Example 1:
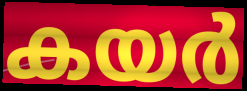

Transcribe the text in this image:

കയർ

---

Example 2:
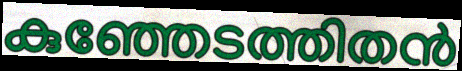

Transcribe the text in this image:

കുഞ്ഞേടത്തിതൻ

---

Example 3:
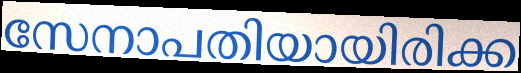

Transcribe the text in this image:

സേനാപതിയായിരിക്ക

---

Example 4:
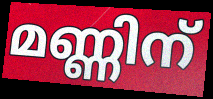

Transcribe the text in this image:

മണ്ണിന്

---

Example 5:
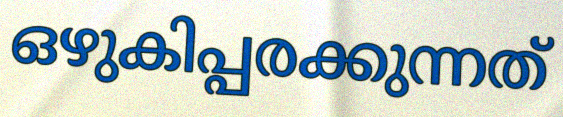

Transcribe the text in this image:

ഒഴുകിപ്പരക്കുന്നത്